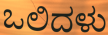
ಒಲಿದಳು